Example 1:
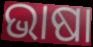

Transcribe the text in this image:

ଭାଷା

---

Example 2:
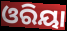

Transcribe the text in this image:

ଓରିୟା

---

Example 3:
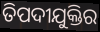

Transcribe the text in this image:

ତିପଦୀଯୁକ୍ତିର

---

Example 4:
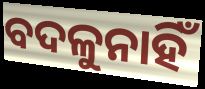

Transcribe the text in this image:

ବଦଳୁନାହିଁ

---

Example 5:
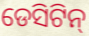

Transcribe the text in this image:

ଡେସିଟିନ୍